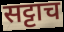
सट्टाच